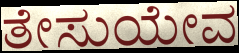
ತೇಸುಯೇವ